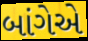
બાંગેએ